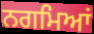
ਨਗਮਿਆਂ